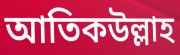
আতিকউল্লাহ